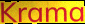
Krama